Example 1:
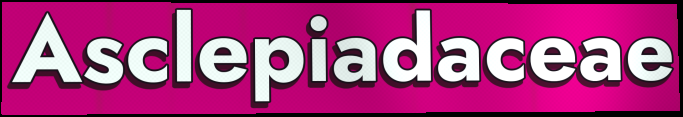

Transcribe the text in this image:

Asclepiadaceae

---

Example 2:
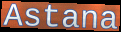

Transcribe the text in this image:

Astana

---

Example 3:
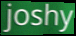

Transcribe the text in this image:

joshy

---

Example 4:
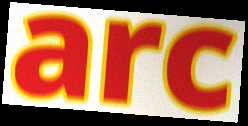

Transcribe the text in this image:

arc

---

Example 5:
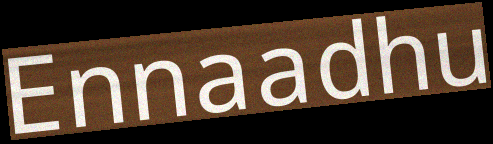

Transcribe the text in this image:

Ennaadhu